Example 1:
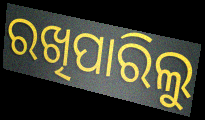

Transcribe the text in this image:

ରଖିପାରିଲୁ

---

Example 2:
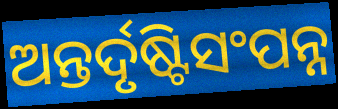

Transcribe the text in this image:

ଅନ୍ତର୍ଦୃଷ୍ଟିସଂପନ୍ନ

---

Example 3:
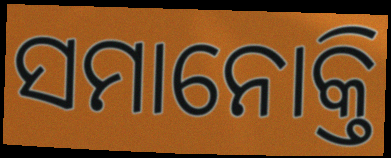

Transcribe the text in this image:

ସମାନୋକ୍ତି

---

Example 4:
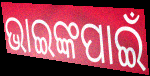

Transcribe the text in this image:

ଭାଇଙ୍କପାଇଁ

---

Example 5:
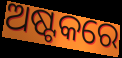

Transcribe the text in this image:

ଅଷ୍ଟକରେ